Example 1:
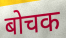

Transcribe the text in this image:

बोचक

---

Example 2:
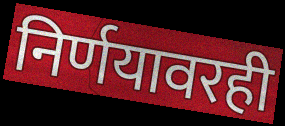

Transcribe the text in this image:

निर्णयावरही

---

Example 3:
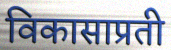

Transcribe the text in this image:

विकासाप्रती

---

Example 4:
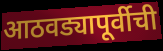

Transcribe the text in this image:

आठवड्यापूर्वीची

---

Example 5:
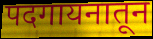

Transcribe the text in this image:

पदगायनातून